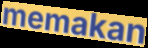
memakan